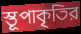
স্তূপাকৃতির